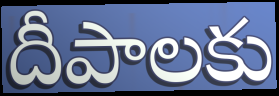
దీపాలకు